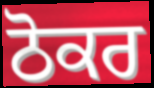
ਠੋਕਰ